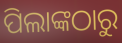
ପିଲାଙ୍କଠାରୁ